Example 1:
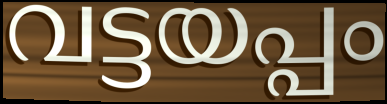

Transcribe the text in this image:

വട്ടയപ്പം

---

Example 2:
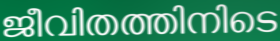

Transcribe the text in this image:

ജീവിതത്തിനിടെ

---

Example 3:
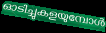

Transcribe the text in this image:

ഓടിച്ചുകളയുമ്പോൾ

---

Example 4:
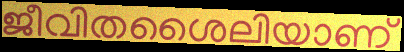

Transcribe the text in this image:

ജീവിതശൈലിയാണ്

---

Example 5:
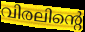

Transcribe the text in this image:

വിരലിന്റെ